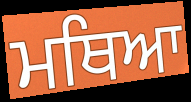
ਮਥਿਆ